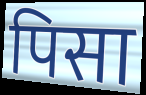
पिसा